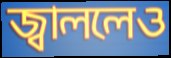
জ্বাললেও